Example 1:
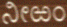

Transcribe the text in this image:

ನೀಱಂ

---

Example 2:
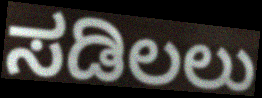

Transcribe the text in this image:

ಸಡಿಲಲು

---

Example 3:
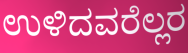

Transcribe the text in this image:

ಉಳಿದವರೆಲ್ಲರ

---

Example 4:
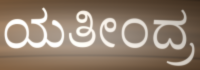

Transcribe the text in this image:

ಯತೀಂದ್ರ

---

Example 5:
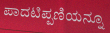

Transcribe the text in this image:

ಪಾದಟಿಪ್ಪಣಿಯನ್ನೂ